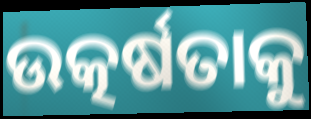
ଉତ୍କର୍ଷତାକୁ